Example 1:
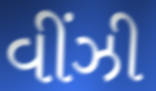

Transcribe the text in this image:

વીંઝી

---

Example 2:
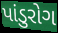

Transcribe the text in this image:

પાંડુરોગ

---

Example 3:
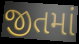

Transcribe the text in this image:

જીતમાં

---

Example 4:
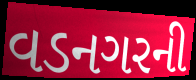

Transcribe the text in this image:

વડનગરની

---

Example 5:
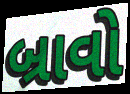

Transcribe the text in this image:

બ્રાવો